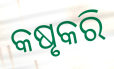
କଷୃକରି